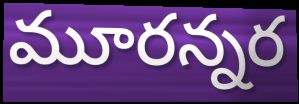
మూరన్నర